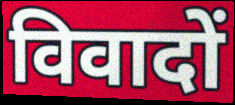
विवादों